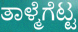
ತಾಳ್ಮೆಗೆಟ್ಟ